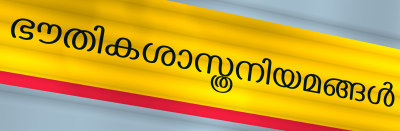
ഭൗതികശാസ്ത്രനിയമങ്ങൾ